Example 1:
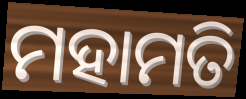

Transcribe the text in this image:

ମହାମତି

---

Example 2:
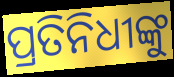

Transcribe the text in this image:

ପ୍ରତିନିଧୀଙ୍କୁ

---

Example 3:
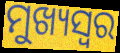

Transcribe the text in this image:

ମୁଖ୍ୟସ୍ୱର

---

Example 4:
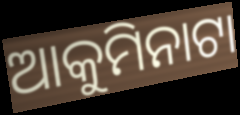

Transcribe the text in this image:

ଆକୁମିନାଟା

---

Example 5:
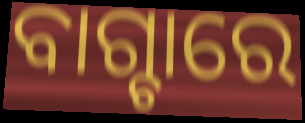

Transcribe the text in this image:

ବାଗ୍ଚାରେ